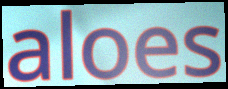
aloes